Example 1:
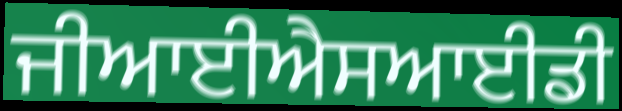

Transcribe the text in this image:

ਜੀਆਈਐਸਆਈਡੀ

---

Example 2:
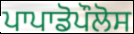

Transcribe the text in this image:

ਪਾਪਾਡੋਪੌਲੋਸ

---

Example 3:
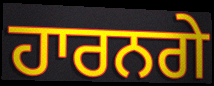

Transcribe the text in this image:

ਹਾਰਨਗੇ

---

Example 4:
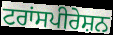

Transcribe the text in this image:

ਟਰਾਂਸਪੀਰੇਸ਼ਨ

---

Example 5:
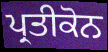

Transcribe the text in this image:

ਪ੍ਰਤੀਕੋਨ